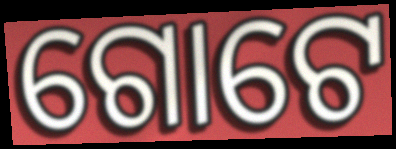
ଗୋଟେ